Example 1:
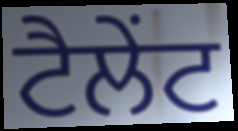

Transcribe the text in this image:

ਟੈਲੇੰਟ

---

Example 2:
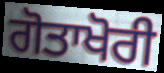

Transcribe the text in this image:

ਗੋਤਾਖੋਰੀ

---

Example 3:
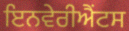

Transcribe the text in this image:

ਇਨਵੇਰੀਐਂਟਸ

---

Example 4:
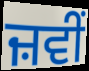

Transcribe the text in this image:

ਜ਼ਵੀਂ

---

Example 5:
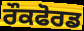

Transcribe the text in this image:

ਰੌਕਫੋਰਡ